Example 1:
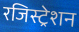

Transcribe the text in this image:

रजिस्ट्रेशन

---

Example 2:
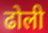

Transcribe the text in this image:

ढोली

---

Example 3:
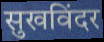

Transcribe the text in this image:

सुखविंदर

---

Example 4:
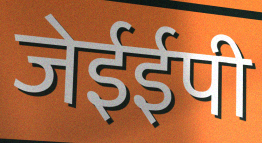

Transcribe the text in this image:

जेईईपी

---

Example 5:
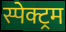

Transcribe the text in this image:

स्पेक्ट्रम